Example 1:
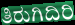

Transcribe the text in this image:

ತಿರುಗಿದಿರಿ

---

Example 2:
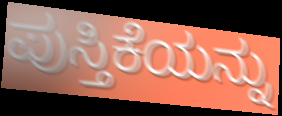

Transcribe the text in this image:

ಪುಸ್ತಿಕೆಯನ್ನು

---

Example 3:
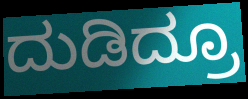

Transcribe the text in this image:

ದುಡಿದ್ರೂ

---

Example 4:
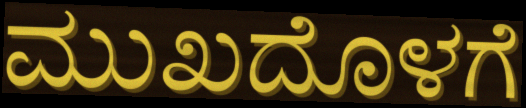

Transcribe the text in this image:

ಮುಖದೊಳಗೆ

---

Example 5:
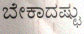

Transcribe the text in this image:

ಬೇಕಾದಷ್ಟು